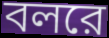
বলরে